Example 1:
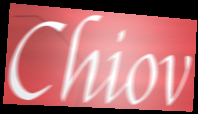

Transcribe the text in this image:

Chiov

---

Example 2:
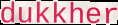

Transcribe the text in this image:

dukkher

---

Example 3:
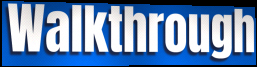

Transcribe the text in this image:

Walkthrough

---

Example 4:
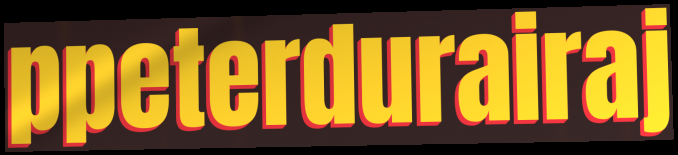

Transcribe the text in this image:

ppeterdurairaj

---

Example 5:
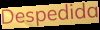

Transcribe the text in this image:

Despedida